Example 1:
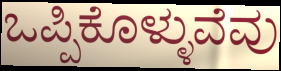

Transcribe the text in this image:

ಒಪ್ಪಿಕೊಳ್ಳುವೆವು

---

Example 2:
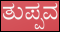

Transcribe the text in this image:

ತುಪ್ಪವ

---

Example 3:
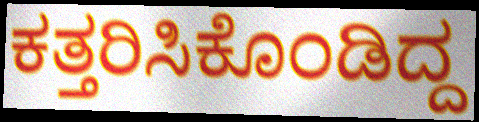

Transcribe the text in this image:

ಕತ್ತರಿಸಿಕೊಂಡಿದ್ದ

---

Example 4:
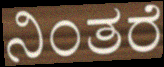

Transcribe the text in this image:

ನಿಂತರೆ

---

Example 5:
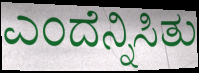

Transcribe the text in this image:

ಎಂದೆನ್ನಿಸಿತು